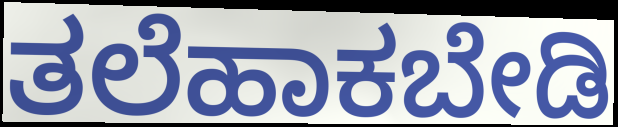
ತಲೆಹಾಕಬೇಡಿ